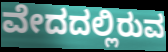
ವೇದದಲ್ಲಿರುವ